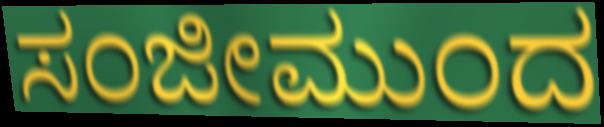
ಸಂಜೀಮುಂದ